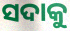
ସଦାକୁ